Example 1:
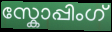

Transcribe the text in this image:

സ്കോപ്പിംഗ്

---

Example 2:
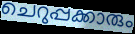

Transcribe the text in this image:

ചെറുപ്പക്കാരും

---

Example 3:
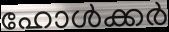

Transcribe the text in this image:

ഹോൾക്കർ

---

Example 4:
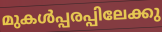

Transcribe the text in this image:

മുകൾപ്പരപ്പിലേക്കു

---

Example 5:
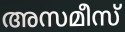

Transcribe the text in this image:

അസമീസ്